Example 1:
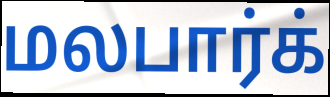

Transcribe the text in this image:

மலபார்க்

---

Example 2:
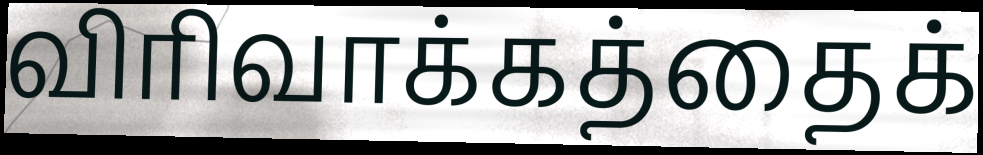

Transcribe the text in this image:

விரிவாக்கத்தைக்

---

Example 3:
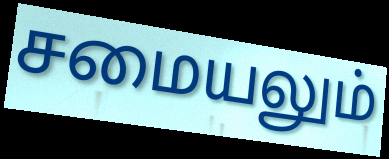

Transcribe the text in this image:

சமையலும்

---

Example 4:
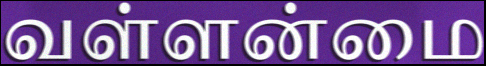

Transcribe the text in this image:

வள்ளன்மை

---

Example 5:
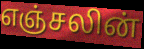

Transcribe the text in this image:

எஞ்சலின்